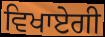
ਵਿਖਾਏਗੀ